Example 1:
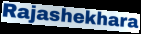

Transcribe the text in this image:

Rajashekhara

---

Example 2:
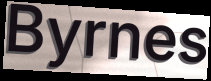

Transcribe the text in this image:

Byrnes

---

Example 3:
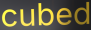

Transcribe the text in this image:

cubed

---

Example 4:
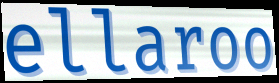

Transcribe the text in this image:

ellaroo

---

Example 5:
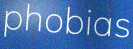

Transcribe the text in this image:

phobias